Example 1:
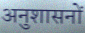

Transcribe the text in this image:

अनुशासनों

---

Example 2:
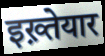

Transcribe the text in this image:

इख़्तेयार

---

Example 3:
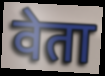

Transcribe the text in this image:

वेता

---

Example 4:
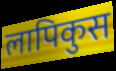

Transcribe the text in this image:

लापिकुस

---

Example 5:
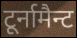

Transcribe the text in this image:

टूर्नामैन्ट